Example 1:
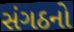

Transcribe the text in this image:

સંગઠનો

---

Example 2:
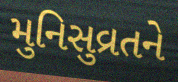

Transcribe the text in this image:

મુનિસુવ્રતને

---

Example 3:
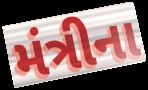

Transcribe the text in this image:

મંત્રીના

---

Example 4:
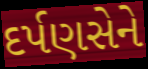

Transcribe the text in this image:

દર્પણસેને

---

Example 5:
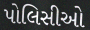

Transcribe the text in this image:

પોલિસીઓ